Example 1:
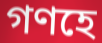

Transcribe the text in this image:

গণহে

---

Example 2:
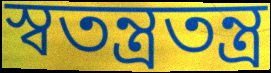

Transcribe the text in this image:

স্বতন্ত্ৰতন্ত্ৰ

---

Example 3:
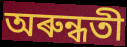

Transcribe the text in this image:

অৰুন্ধতী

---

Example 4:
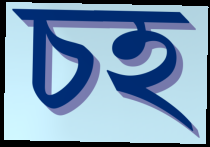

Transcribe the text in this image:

চহ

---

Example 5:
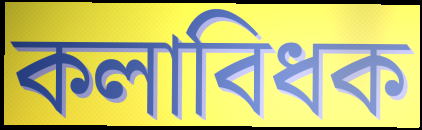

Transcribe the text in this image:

কলাবিধক